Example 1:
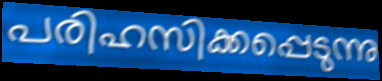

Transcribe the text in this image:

പരിഹസിക്കപ്പെടുന്നു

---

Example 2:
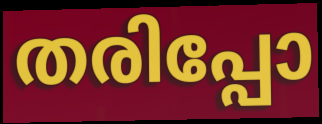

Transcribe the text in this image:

തരിപ്പോ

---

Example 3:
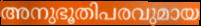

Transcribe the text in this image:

അനുഭൂതിപരവുമായ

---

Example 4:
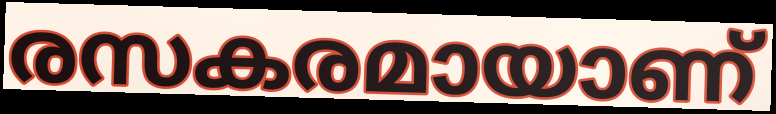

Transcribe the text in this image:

രസകരമായാണ്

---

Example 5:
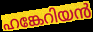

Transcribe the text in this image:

ഹങ്കേറിയൻ